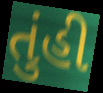
તુંહી